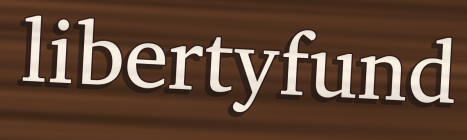
libertyfund